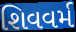
શિવવર્મ